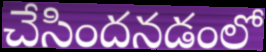
చేసిందనడంలో